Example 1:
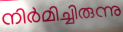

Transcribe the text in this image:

നിർമിച്ചിരുന്നു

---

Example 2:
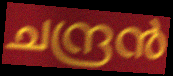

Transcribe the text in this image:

ചന്ദ്രൻ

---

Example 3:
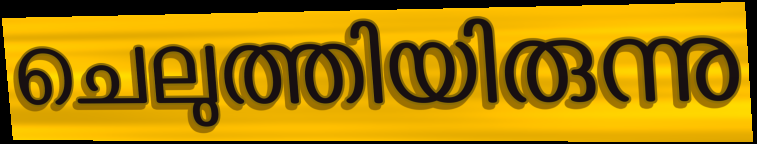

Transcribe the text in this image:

ചെലുത്തിയിരുന്നു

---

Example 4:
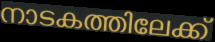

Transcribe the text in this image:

നാടകത്തിലേക്ക്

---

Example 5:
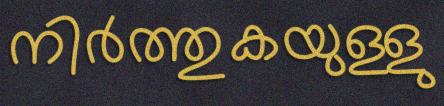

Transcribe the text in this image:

നിർത്തുകയുള്ളു